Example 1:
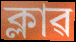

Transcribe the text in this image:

ক্লাৱ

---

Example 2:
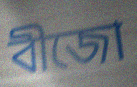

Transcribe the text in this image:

বীজো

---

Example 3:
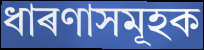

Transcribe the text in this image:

ধাৰণাসমূহক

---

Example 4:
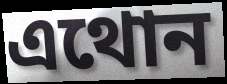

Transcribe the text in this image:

এথোন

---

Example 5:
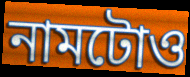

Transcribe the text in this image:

নামটোও